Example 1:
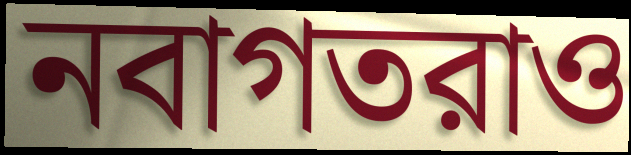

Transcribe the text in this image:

নবাগতরাও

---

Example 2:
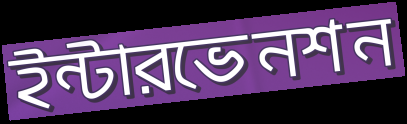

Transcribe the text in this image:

ইন্টারভেনশন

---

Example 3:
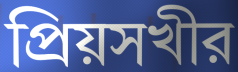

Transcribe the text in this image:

প্রিয়সখীর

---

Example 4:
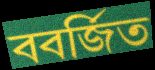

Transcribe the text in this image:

ববর্জিত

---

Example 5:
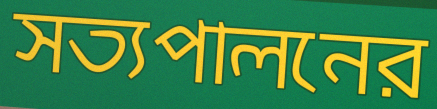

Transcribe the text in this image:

সত্যপালনের